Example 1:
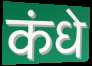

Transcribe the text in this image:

कंधे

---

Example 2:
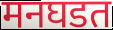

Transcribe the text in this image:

मनघडत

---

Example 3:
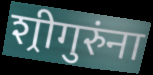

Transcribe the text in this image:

श्रीगुरुंना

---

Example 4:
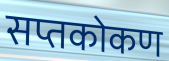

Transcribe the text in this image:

सप्तकोकण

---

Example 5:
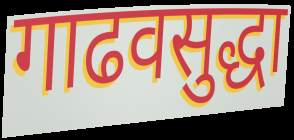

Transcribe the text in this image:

गाढवसुद्धा